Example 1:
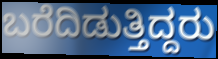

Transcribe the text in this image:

ಬರೆದಿಡುತ್ತಿದ್ದರು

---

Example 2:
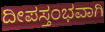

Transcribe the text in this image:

ದೀಪಸ್ತಂಭವಾಗಿ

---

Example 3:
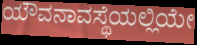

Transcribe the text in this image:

ಯೌವನಾವಸ್ಥೆಯಲ್ಲಿಯೇ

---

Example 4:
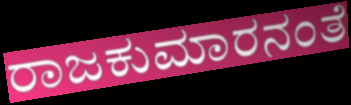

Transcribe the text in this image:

ರಾಜಕುಮಾರನಂತೆ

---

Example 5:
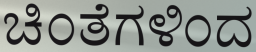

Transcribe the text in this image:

ಚಿಂತೆಗಳಿಂದ